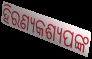
ହିରଣ୍ୟକଶ୍ୟପଙ୍କ